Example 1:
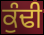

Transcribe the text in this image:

ਕੁੰਢੀ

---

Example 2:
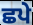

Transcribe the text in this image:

ਛਪੇ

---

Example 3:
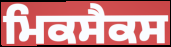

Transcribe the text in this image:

ਮਿਕਸੈਕਸ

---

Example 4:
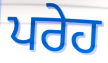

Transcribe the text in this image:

ਪਰੇਹ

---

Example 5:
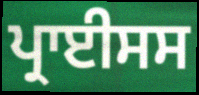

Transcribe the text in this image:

ਪ੍ਰਾਈਸਸ